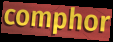
comphor